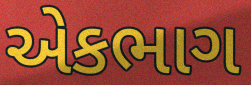
એકભાગ